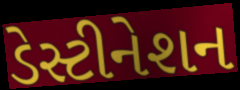
ડેસ્ટીનેશન